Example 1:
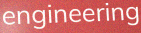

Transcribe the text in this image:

engineering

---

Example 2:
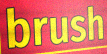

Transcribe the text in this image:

brush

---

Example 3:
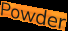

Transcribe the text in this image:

Powder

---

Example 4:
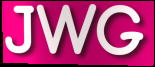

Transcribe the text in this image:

JWG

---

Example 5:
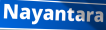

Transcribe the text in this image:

Nayantara